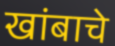
खांबाचे